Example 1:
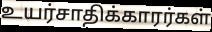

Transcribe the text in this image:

உயர்சாதிக்காரர்கள்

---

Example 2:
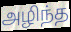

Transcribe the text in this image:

அழிந்த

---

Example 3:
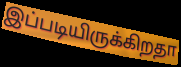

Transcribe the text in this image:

இப்படியிருக்கிறதா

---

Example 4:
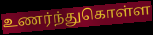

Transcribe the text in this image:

உணர்ந்துகொள்ள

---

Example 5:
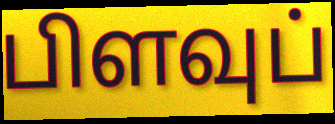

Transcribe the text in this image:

பிளவுப்